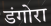
डंगोरा